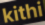
kithi